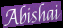
Abishai